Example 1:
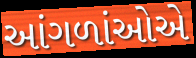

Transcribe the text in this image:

આંગળાંઓએ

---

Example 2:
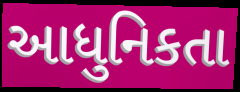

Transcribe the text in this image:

આધુનિકતા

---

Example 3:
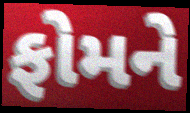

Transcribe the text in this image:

ફોમને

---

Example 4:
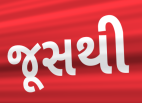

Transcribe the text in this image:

જૂસથી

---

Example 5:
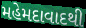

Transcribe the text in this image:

મહેમદાવાદથી